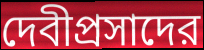
দেবীপ্রসাদের